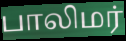
பாலிமர்